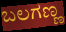
ಬಲಗಣ್ಣ